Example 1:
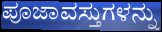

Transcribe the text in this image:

ಪೂಜಾವಸ್ತುಗಳನ್ನು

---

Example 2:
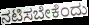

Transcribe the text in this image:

ನಟಿಸಬೇಕೆಂದು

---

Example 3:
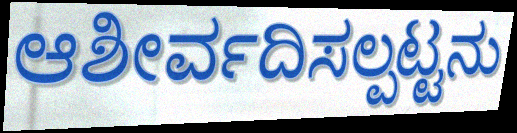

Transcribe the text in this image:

ಆಶೀರ್ವದಿಸಲ್ಪಟ್ಟನು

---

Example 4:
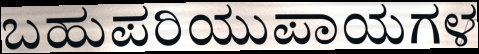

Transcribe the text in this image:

ಬಹುಪರಿಯುಪಾಯಗಳ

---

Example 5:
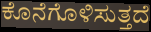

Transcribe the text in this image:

ಕೊನೆಗೊಳಿಸುತ್ತದೆ